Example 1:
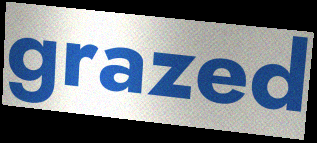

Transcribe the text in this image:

grazed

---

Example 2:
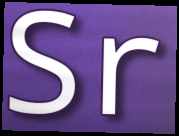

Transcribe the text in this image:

Sr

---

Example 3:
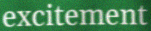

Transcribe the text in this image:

excitement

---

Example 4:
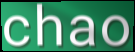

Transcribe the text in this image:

chao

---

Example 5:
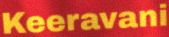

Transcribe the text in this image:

Keeravani